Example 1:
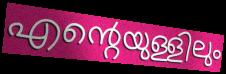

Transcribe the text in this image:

എന്റെയുള്ളിലും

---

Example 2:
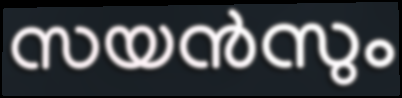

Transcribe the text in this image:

സയൻസും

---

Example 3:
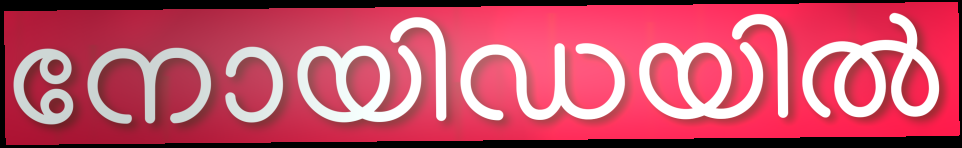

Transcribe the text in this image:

നോയിഡയിൽ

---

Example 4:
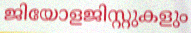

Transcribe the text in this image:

ജിയോളജിസ്റ്റുകളും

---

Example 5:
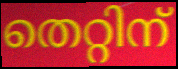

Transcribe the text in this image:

തെറ്റിന്